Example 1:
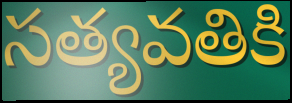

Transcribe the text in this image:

సత్యవతికి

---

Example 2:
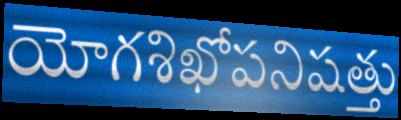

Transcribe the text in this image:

యోగశిఖోపనిషత్తు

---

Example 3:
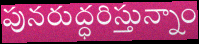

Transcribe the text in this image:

పునరుద్ధరిస్తున్నాం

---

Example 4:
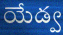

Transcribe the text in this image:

యేడ్వ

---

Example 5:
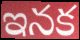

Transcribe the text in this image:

ఇనక